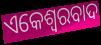
ଏକେଶ୍ୱରବାଦ